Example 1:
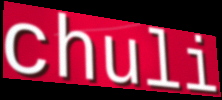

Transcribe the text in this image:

chuli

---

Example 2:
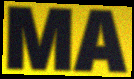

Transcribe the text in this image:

MA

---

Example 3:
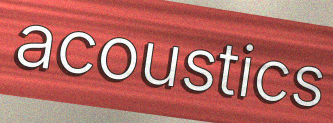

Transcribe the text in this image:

acoustics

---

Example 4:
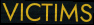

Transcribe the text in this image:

VICTIMS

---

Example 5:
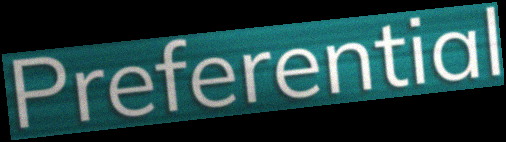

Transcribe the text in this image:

Preferential